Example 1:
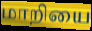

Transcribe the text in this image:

மாறியை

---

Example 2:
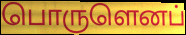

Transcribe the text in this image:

பொருளெனப்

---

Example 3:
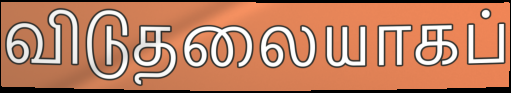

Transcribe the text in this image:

விடுதலையாகப்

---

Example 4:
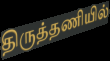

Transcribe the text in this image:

திருத்தணியில்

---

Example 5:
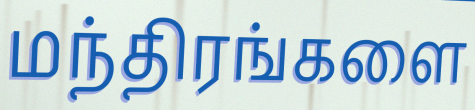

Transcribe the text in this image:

மந்திரங்களை